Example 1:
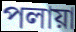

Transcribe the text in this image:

পলায়া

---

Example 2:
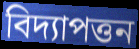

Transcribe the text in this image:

বিদ্যাপত্তন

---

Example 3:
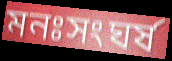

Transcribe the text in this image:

মনঃসংঘর্ষ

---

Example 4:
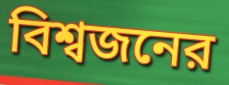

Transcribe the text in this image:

বিশ্বজনের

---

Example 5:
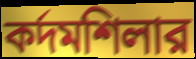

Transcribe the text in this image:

কর্দমশিলার